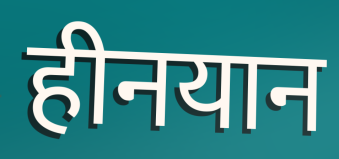
हीनयान